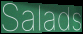
Salads